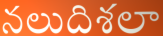
నలుదిశలా